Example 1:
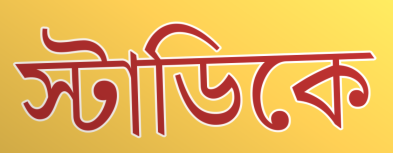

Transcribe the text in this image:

স্টাডিকে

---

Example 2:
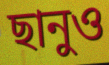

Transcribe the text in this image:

ছানুও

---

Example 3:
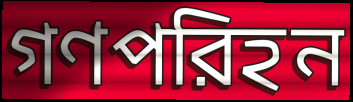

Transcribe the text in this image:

গণপরিহন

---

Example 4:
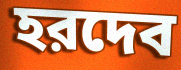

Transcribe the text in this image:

হরদেব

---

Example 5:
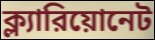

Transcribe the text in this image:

ক্ল্যারিয়োনেট